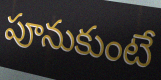
పూనుకుంటే